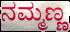
ನಮ್ಮಣ್ಣ